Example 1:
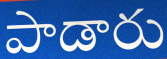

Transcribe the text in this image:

పాడారు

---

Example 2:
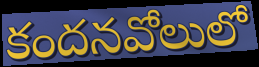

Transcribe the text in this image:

కందనవోలులో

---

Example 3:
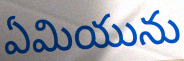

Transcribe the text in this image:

ఏమియును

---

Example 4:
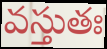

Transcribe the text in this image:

వస్తుతః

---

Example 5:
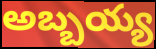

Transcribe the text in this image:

అబ్బయ్య